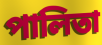
পালিতা